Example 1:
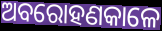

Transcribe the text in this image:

ଅବରୋହଣକାଳେ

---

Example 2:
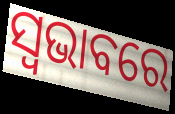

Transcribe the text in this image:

ସ୍ବଭାବରେ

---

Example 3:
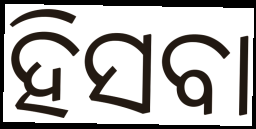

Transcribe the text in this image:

ହିସବା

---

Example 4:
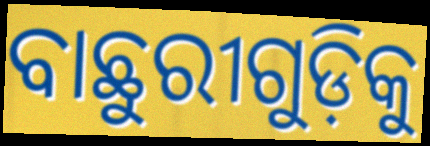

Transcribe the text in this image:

ବାଛୁରୀଗୁଡ଼ିକୁ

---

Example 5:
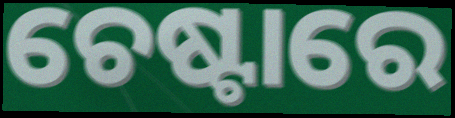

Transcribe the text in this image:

ଚେଷ୍ଟାରେ